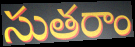
సుతరాం